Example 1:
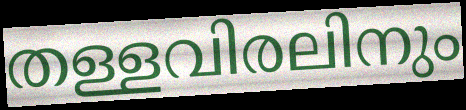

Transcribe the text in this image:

തള്ളവിരലിനും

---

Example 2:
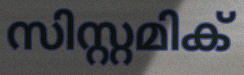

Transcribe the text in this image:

സിസ്റ്റമിക്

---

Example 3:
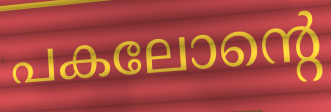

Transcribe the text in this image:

പകലോന്റെ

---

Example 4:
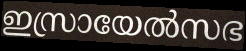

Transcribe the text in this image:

ഇസ്രായേൽസഭ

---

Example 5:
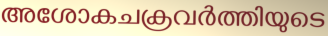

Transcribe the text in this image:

അശോകചക്രവർത്തിയുടെ